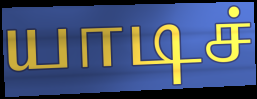
யாடிச்